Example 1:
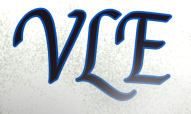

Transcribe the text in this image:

VLE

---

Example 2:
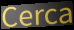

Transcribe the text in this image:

Cerca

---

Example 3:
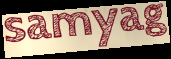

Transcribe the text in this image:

samyag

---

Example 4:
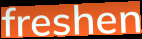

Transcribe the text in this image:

freshen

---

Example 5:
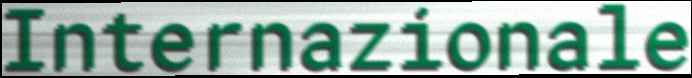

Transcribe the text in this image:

Internazionale